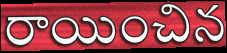
రాయించిన